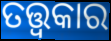
ତତ୍ତ୍ୱକାର